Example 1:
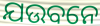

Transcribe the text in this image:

ଯଉବନେ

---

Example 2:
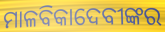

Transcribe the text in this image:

ମାଳବିକାଦେବୀଙ୍କର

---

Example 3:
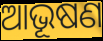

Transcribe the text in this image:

ଆଭୂଷଣ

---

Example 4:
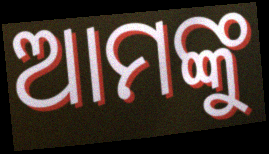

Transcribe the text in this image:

ଆମଙ୍କୁ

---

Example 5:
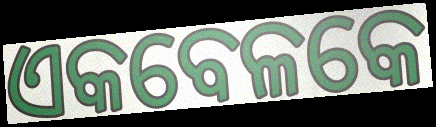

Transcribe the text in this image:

ଏକବେଳକେ